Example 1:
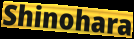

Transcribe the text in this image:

Shinohara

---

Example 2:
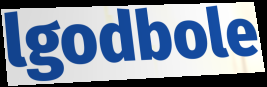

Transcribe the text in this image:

lgodbole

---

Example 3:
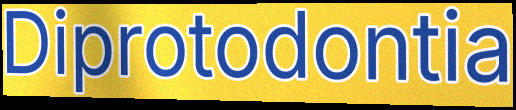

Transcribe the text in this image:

Diprotodontia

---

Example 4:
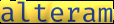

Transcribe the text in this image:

alteram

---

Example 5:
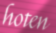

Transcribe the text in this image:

hoten